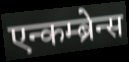
एन्कम्ब्रेन्स